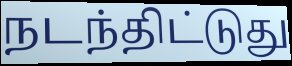
நடந்திட்டுது